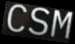
CSM